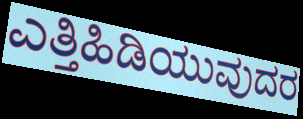
ಎತ್ತಿಹಿಡಿಯುವುದರ